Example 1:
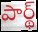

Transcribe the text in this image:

పార్థ్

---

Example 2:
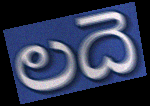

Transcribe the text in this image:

లదె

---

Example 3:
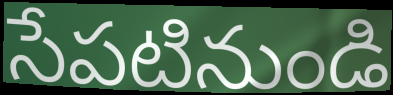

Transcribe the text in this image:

సేపటినుండి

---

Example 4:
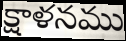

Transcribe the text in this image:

క్షాళనము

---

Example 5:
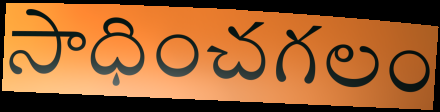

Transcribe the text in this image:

సాధించగలం